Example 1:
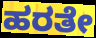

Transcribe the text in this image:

ಹರತೇ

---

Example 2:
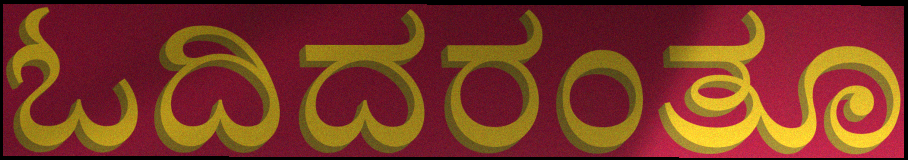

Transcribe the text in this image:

ಓದಿದರಂತೂ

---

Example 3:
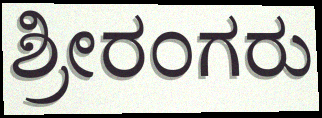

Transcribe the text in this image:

ಶ್ರೀರಂಗರು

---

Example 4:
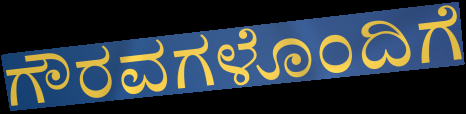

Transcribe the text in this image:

ಗೌರವಗಳೊಂದಿಗೆ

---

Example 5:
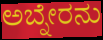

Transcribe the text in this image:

ಅಬ್ನೇರನು